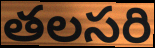
తలసరి